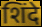
शिंदे